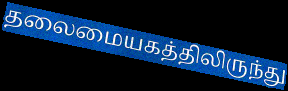
தலைமையகத்திலிருந்து